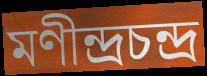
মণীন্দ্রচন্দ্র